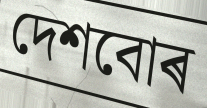
দেশবোৰ